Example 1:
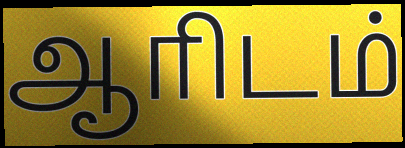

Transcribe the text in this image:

ஆரிடம்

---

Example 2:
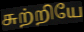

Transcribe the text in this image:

சுற்றியே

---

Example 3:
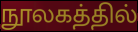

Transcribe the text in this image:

நூலகத்தில்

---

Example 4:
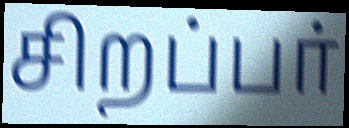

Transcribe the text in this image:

சிறப்பர்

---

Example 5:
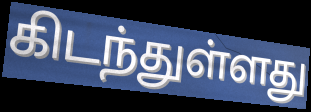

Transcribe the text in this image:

கிடந்துள்ளது